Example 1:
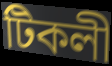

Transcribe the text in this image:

টিকলী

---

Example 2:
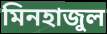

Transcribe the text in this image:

মিনহাজুল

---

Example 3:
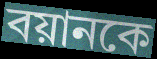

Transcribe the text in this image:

বয়ানকে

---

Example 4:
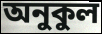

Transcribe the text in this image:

অনুকুল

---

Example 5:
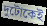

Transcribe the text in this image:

দুটোকেই